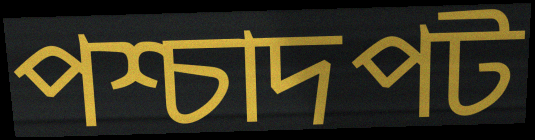
পশ্চাদপট